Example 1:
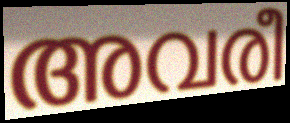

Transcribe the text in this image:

അവരീ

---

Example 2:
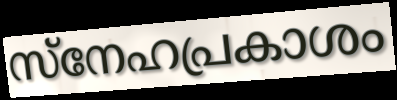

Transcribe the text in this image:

സ്നേഹപ്രകാശം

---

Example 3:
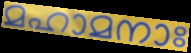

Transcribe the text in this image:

മഹാമനാഃ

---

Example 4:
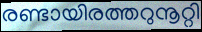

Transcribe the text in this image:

രണ്ടായിരത്തറുനൂറ്റി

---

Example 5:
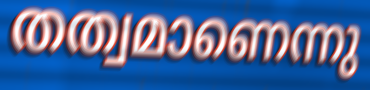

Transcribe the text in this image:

തത്വമാണെന്നു